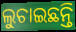
ଲୁଚାଇଛନ୍ତି